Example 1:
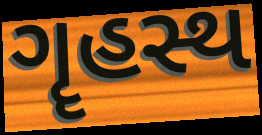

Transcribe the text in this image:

ગૄહસ્થ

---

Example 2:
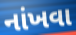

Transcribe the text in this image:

નાંખવા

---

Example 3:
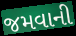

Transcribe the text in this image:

જમવાની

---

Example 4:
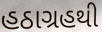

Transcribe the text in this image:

હઠાગ્રહથી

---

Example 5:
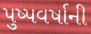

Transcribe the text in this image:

પુષ્પવર્ષાની